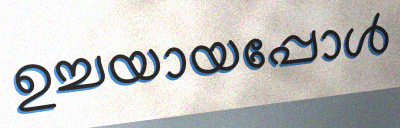
ഉച്ചയായപ്പോൾ